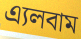
এ্যলবাম